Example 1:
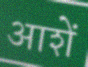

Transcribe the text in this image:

आशें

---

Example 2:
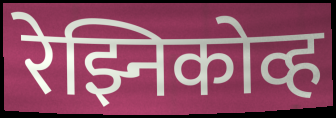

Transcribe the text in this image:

रेझ्निकोव्ह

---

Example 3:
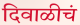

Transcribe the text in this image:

दिवाळीचं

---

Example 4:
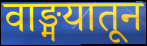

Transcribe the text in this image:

वाङ्मयातून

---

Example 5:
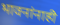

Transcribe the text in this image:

भावनांनाही